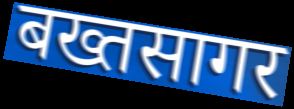
बख्तसागर